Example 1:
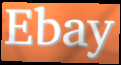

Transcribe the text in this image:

Ebay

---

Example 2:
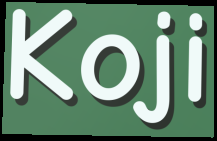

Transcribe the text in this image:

Koji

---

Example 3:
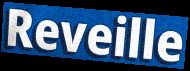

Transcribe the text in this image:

Reveille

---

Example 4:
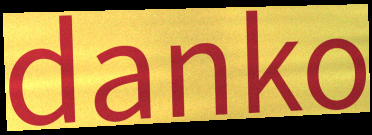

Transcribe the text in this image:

danko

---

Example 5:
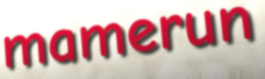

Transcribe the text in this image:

mamerun